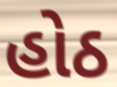
હોઠ